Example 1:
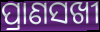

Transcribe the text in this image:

ପ୍ରାଣସଖୀ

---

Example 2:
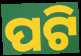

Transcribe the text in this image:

ପଟି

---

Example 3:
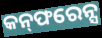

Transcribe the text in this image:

କନ୍‌ଫରେନ୍ସ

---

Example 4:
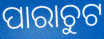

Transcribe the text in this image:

ପାରାଚୁଟ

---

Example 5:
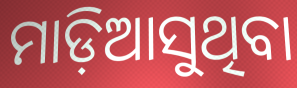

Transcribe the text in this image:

ମାଡ଼ିଆସୁଥିବା